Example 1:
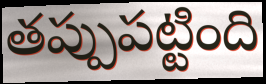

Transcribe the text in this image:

తప్పుపట్టింది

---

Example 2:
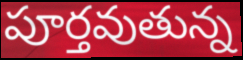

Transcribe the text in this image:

పూర్తవుతున్న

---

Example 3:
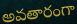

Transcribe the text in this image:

అవతారంగా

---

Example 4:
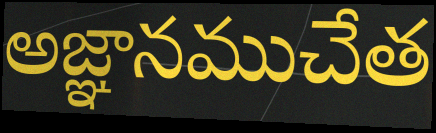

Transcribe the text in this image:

అజ్ఞానముచేత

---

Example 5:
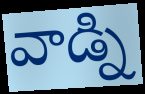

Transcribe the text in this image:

వాడ్ని